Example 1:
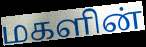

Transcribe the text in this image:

மகளின்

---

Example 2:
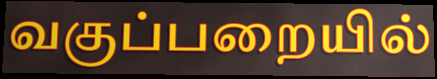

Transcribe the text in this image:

வகுப்பறையில்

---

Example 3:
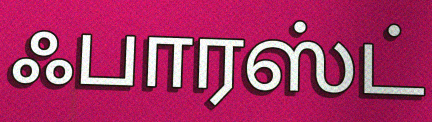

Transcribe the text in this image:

ஃபாரஸ்ட்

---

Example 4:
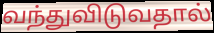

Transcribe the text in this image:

வந்துவிடுவதால்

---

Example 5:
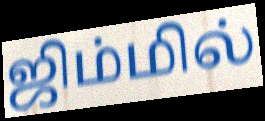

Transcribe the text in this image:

ஜிம்மில்